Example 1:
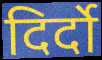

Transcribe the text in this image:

दिर्दो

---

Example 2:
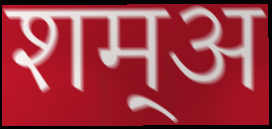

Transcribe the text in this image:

शम्अ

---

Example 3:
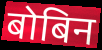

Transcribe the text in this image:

बोबिन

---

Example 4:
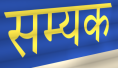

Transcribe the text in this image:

सम्यक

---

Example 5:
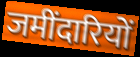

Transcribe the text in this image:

जमींदारियों